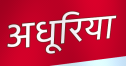
अधूरिया